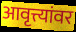
आवृत्त्यांवर